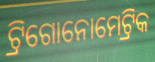
ଟ୍ରିଗୋନୋମେଟ୍ରିକ